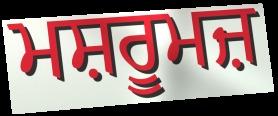
ਮਸ਼ਰੂਮਜ਼